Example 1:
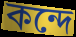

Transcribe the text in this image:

কন্দে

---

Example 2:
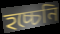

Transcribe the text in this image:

হচ্চেনি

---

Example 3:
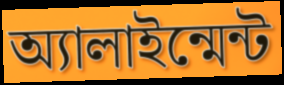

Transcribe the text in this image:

অ্যালাইন্মেন্ট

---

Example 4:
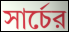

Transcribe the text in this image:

সার্চের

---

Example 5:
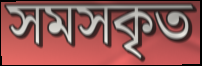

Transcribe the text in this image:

সমসকৃত